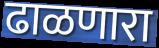
ढाळणारा